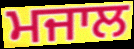
ਮਜਾਲ